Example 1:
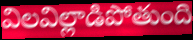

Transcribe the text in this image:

విలవిల్లాడిపోతుంది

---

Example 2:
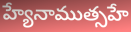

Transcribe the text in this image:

హ్యేనాముత్సహే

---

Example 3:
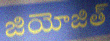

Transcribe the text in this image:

జియోజిత్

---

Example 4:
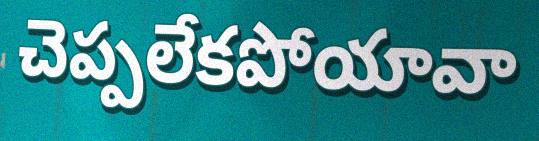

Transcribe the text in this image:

చెప్పలేకపోయావా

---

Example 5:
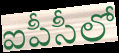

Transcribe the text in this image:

ఐపీసీలో